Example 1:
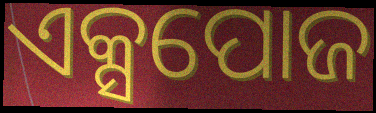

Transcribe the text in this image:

ଏକ୍ସପୋଜ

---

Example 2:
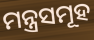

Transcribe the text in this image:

ମନ୍ତ୍ରସମୂହ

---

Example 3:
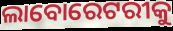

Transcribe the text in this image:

ଲାବୋରେଟରୀକୁ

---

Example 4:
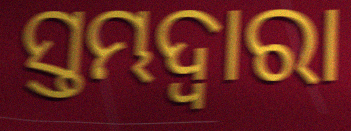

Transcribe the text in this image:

ସ୍ତମ୍ଭଦ୍ୱାରା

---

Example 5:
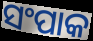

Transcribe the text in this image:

ସଂପାକ